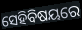
ସେହିବିଷୟରେ